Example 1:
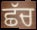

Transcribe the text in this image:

ਛੱਚ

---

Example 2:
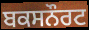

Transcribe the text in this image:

ਬਕਸਨੌਰਟ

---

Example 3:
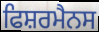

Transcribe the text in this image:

ਫਿਸ਼ਰਮੈਨਸ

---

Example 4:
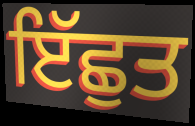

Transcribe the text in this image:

ਇੱਛੁਤ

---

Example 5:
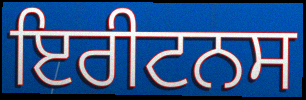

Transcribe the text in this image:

ਇਰੀਟਨਸ